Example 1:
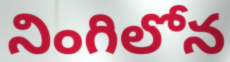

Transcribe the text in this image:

నింగిలోన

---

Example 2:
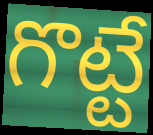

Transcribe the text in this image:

గొట్టే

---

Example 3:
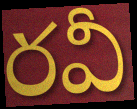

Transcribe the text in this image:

రవీ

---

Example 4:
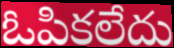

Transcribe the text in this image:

ఓపికలేదు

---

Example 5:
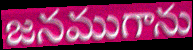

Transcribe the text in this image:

జనముగాను